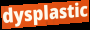
dysplastic